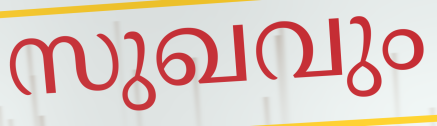
സുഖവും